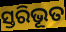
ସ୍ତରିଭୂତ